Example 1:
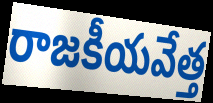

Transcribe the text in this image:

రాజకీయవేత్త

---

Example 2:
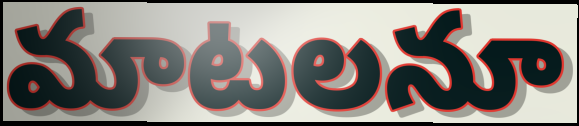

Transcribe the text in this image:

మాటలనూ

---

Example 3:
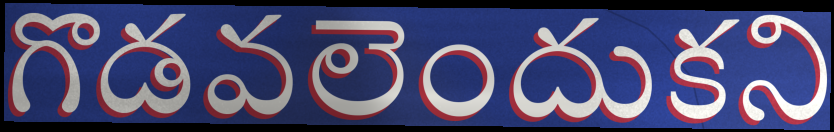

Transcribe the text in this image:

గొడవలెందుకని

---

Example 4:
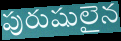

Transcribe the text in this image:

పురుషులైన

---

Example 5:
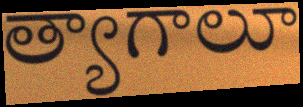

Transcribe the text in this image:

త్యాగాలూ